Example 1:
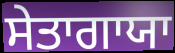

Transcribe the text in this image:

ਸੇਤਾਗਾਯਾ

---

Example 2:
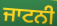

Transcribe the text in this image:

ਜਾਟਨੀ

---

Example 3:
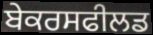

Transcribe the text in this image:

ਬੇਕਰਸਫੀਲਡ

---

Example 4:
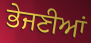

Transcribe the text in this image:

ਭੇਜਣੀਆਂ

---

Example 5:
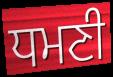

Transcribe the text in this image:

ਧਮਣੀ